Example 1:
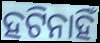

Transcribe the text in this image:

ହଟିନାହିଁ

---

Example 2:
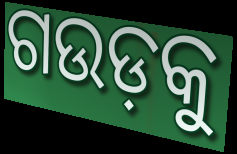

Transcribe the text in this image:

ଗଉଡ଼କୁ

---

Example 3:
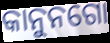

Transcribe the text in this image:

କାନୁନଗୋ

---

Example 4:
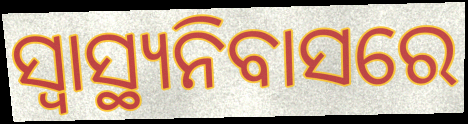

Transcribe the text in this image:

ସ୍ଵାସ୍ଥ୍ୟନିବାସରେ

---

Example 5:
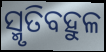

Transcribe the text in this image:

ସ୍ମୃତିବହୁଳ